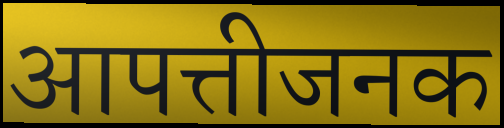
आपत्तीजनक